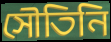
সৌতিনি